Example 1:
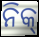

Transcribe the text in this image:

ନିକ୍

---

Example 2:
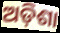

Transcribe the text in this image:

ଅଡ଼ିଶା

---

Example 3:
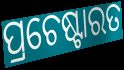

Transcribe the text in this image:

ପ୍ରଚେଷ୍ଟାରତ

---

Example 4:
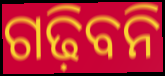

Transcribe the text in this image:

ଗଢ଼ିବନି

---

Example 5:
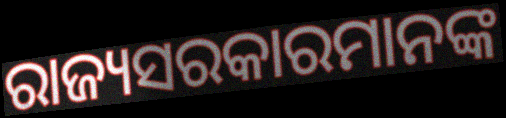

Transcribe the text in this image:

ରାଜ୍ୟସରକାରମାନଙ୍କ